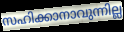
സഹിക്കാനാവുന്നില്ല